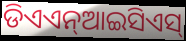
ଡିଏଏନ୍ଆଇସିଏସ୍